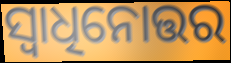
ସ୍ୱାଧିନୋତ୍ତର